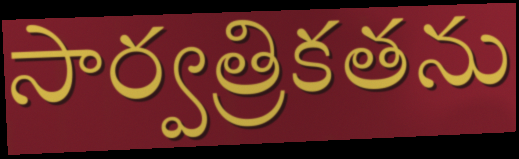
సార్వత్రికతను